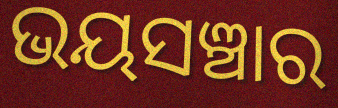
ଭୟସଞ୍ଚାର